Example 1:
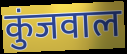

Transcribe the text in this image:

कुंजवाल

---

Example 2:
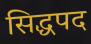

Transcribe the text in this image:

सिद्धपद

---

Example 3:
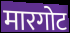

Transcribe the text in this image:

मारगोट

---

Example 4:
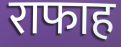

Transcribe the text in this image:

राफाह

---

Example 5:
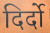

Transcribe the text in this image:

दिर्दो